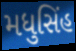
મધુસિંહ